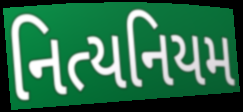
નિત્યનિયમ